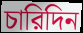
চারিদিন